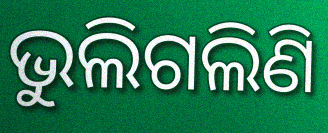
ଭୁଲିଗଲିଣି